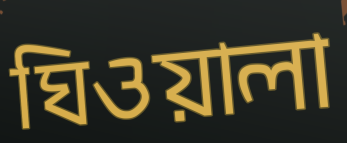
ঘিওয়ালা